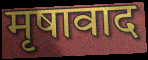
मृषावाद